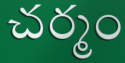
చర్మం